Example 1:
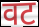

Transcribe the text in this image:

वट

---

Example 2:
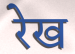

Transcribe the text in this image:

रेख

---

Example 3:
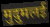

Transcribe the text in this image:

मुदुमलई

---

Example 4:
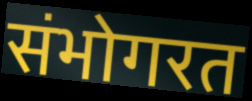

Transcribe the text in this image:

संभोगरत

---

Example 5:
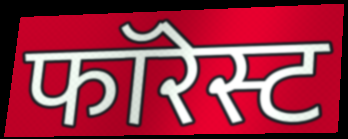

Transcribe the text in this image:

फॉरेस्ट